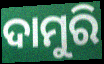
ଦାମୁରି